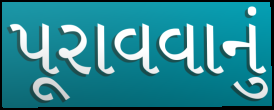
પૂરાવવાનું